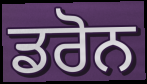
ਡਰੋਨ